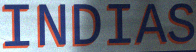
INDIAS